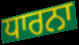
ਧਾਰਨਾ